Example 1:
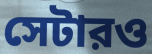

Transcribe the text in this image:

সেটারও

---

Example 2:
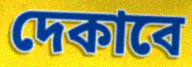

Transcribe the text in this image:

দেকাবে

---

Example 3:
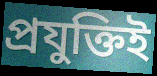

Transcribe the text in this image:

প্রযুক্তিই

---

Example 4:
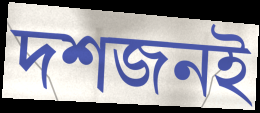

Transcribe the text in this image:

দশজনই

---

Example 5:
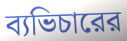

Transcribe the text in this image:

ব্যভিচারের